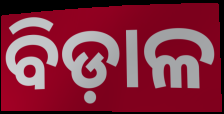
ବିଡ଼ାଳ